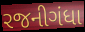
રજનીગંધા